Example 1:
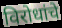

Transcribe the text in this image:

विरोधांचे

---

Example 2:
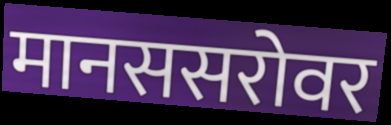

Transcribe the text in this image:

मानससरोवर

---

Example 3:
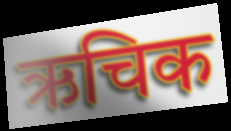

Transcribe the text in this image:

ऋचिक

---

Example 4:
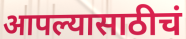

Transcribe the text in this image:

आपल्यासाठीचं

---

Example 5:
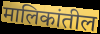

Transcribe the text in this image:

मालिकांतील